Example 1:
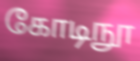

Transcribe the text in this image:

கோடிநூ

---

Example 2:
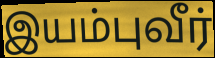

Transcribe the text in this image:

இயம்புவீர்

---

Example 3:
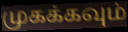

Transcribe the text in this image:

முகக்கவும்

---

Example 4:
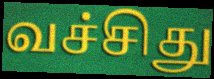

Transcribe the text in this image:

வச்சிது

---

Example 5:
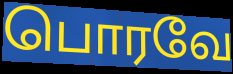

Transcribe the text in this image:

பொரவே